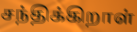
சந்திக்கிறாள்